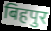
बिहपुर